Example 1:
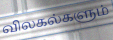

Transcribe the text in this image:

விலகல்களும்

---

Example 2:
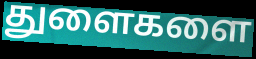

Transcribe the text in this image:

துளைகளை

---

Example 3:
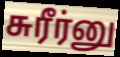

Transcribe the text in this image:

சுரீர்னு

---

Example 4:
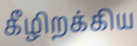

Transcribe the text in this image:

கீழிறக்கிய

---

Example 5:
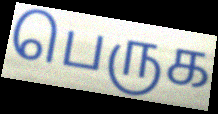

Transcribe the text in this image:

பெருக